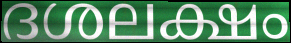
ദശലക്ഷം